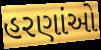
હરણાંઓ